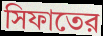
সিফাতের